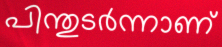
പിന്തുടർന്നാണ്